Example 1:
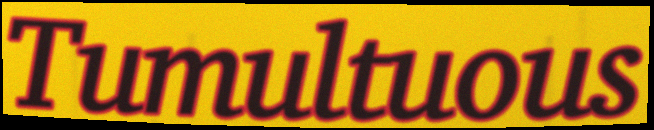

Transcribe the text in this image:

Tumultuous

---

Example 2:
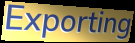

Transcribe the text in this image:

Exporting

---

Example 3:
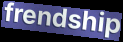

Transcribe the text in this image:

frendship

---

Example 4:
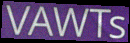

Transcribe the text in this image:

VAWTs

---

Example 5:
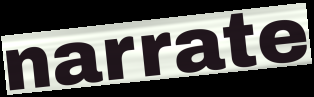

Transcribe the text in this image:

narrate